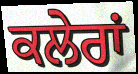
ਕਲੇਰਾਂ